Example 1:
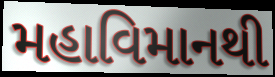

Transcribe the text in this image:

મહાવિમાનથી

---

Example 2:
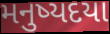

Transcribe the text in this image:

મનુષ્યદયા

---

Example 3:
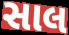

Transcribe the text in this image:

સાલ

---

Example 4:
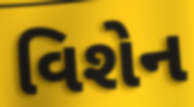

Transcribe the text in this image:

વિશેન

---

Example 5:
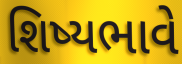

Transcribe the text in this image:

શિષ્યભાવે